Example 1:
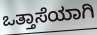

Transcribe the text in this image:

ಒತ್ತಾಸೆಯಾಗಿ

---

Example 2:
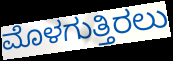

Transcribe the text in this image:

ಮೊಳಗುತ್ತಿರಲು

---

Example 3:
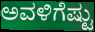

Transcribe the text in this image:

ಅವಳಿಗೆಷ್ಟು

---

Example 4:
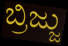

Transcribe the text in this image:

ಬ್ರಿಜ್ಜು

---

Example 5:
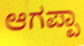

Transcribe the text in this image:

ಆಗಪ್ಪಾ